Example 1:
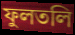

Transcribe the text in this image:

ফুলতলি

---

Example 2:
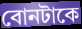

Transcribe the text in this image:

বোনটাকে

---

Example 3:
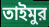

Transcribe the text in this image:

তাইমুর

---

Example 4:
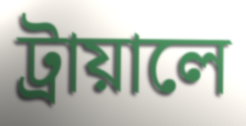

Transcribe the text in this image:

ট্রায়ালে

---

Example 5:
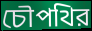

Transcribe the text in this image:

চৌপথির